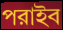
পরাইব